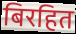
बिरहित